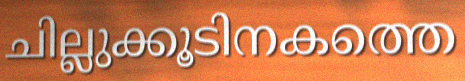
ചില്ലുക്കൂടിനകത്തെ